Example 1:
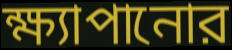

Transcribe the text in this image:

ক্ষ্যাপানোর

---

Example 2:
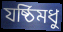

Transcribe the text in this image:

যষ্ঠিমধু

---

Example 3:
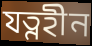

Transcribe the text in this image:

যত্নহীন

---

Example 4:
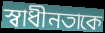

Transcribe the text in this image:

স্বাধীনতাকে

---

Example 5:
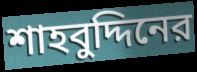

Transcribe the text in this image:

শাহবুদ্দিনের